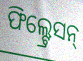
ଫିଲ୍ଟ୍ରେସନ୍